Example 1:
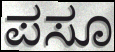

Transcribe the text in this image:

ಪಸೂ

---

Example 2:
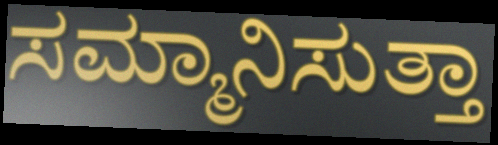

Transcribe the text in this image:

ಸಮ್ಮಾನಿಸುತ್ತಾ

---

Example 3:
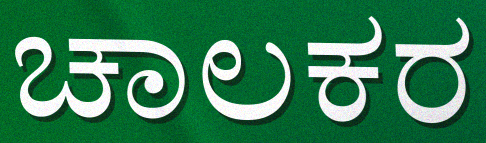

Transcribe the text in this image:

ಚಾಲಕರ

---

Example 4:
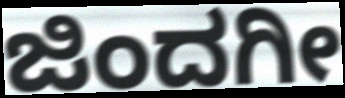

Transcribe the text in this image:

ಜಿಂದಗೀ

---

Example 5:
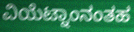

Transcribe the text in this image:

ವಿಯೆಟ್ನಾಂನಂತಹ